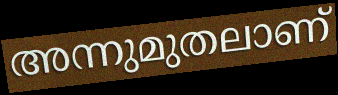
അന്നുമുതലാണ്